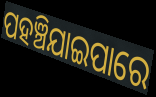
ପହଞ୍ଚିଯାଇପାରେ